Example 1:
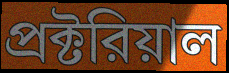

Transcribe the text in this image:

প্রক্টরিয়াল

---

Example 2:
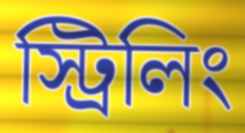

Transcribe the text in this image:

স্ট্রিলিং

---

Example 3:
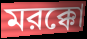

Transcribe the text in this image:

মরক্কো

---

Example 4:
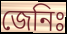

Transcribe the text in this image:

জেনিঃ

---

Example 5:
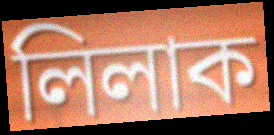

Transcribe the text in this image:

লিলাক